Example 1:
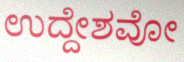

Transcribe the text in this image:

ಉದ್ದೇಶವೋ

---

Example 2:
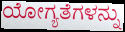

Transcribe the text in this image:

ಯೋಗ್ಯತೆಗಳನ್ನು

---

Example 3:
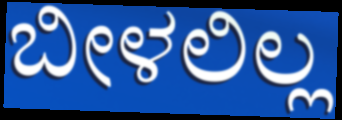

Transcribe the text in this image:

ಬೀಳಲಿಲ್ಲ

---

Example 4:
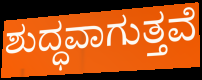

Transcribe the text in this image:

ಶುದ್ಧವಾಗುತ್ತವೆ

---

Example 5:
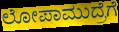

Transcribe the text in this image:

ಲೋಪಾಮುದ್ರೆಗೆ